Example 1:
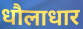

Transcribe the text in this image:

धौलाधार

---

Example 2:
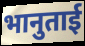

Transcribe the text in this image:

भानुताई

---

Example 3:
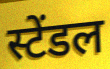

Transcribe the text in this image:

स्टेंडल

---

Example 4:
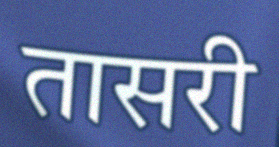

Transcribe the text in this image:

तासरी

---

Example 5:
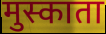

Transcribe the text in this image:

मुस्काता